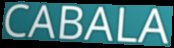
CABALA